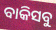
ବାକିସବୁ